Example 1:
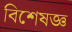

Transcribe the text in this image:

বিশেষজ্ঞ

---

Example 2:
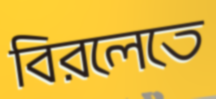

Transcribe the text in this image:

বিরলেতে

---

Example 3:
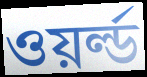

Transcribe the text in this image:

ওয়র্ল্ড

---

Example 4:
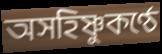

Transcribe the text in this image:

অসহিষ্ণুকণ্ঠে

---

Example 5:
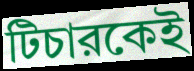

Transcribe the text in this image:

টিচারকেই